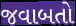
જવાબતો